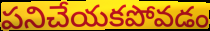
పనిచేయకపోవడం